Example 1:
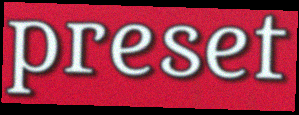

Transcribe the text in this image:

preset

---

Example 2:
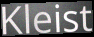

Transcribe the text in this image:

Kleist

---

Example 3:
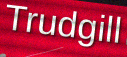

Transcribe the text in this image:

Trudgill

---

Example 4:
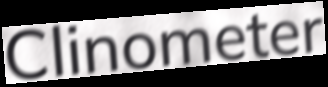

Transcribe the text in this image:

Clinometer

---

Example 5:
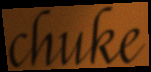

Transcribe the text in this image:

chuke